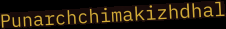
Punarchchimakizhdhal